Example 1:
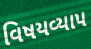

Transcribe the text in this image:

વિષયવ્યાપ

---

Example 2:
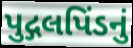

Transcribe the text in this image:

પુદ્ગલપિંડનું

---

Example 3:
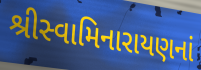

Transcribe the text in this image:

શ્રીસ્વામિનારાયણનાં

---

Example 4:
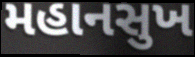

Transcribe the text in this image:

મહાનસુખ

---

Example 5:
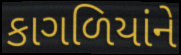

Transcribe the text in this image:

કાગળિયાંને